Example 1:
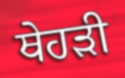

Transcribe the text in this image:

ਥੇਹੜੀ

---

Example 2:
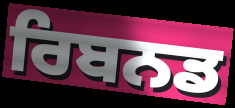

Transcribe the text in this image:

ਰਿਬਨਡ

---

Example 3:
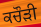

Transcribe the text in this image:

ਕਚੌੜੀ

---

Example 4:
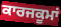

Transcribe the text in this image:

ਕਾਰਜਕੂਮਾਂ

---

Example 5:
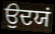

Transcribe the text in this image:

ਉਦਯਂ